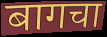
बागचा